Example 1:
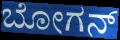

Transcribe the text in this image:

ಬೋಗನ್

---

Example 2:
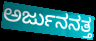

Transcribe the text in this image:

ಅರ್ಜುನನತ್ತ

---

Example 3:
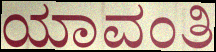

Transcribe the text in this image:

ಯಾವಂತಿ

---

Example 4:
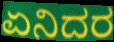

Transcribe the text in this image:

ಏನಿದರ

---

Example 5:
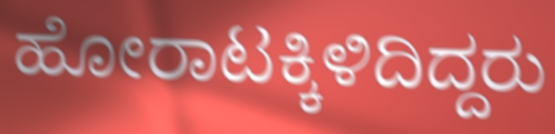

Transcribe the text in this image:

ಹೋರಾಟಕ್ಕಿಳಿದಿದ್ದರು